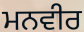
ਮਨਵੀਰ